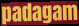
padagam